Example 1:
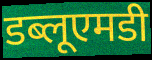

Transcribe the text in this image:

डब्लूएमडी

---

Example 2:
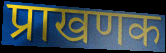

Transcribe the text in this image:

प्राखणक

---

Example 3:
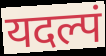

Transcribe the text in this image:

यदल्पं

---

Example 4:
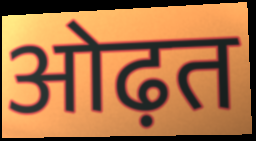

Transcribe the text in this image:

ओढ़त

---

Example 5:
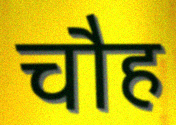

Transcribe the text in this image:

चौह